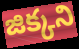
జిక్కని